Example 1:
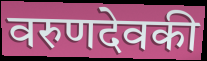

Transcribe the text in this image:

वरुणदेवकी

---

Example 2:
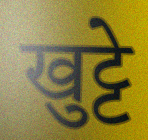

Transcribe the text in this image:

खुट्टे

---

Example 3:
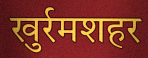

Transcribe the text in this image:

खुर्रमशहर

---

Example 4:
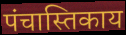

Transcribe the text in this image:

पंचास्तिकाय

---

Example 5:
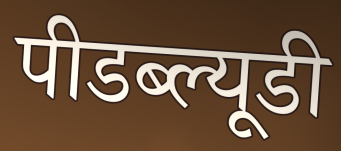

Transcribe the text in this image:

पीडब्ल्यूडी